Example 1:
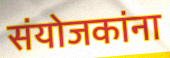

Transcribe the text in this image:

संयोजकांना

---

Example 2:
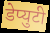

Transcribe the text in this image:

डेप्युटी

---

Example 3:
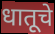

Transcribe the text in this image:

धातूचे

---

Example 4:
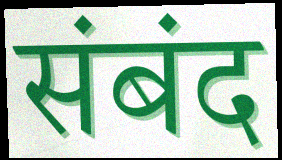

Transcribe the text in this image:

संबंद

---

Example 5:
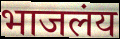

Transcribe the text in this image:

भाजलंय